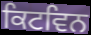
ਕਿਟਵਿਨ